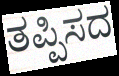
ತಪ್ಪಿಸದ